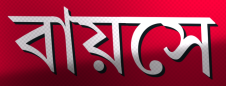
বায়সে